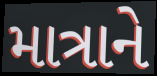
માત્રાને